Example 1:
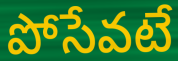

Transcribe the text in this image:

పోసేవటే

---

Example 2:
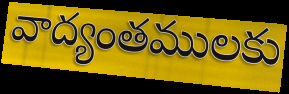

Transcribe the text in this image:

వాద్యంతములకు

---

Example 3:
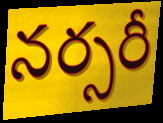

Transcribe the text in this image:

నర్సరీ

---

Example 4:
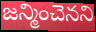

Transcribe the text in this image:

జన్మించెనని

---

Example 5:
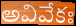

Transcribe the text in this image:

అవివేకః